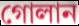
গোলান